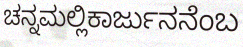
ಚನ್ನಮಲ್ಲಿಕಾರ್ಜುನನೆಂಬ